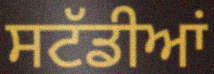
ਸਟੱਡੀਆਂ